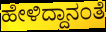
ಹೇಳಿದ್ದಾನಂತೆ